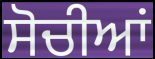
ਸੋਚੀਆਂ